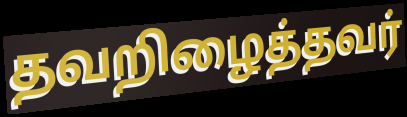
தவறிழைத்தவர்